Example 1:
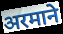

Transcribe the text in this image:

अरमाने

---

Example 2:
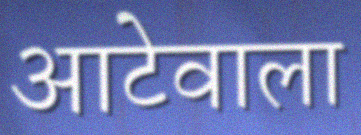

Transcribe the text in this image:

आटेवाला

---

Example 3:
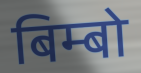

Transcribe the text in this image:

बिम्बो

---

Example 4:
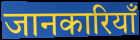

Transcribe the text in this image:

जानकारियाँ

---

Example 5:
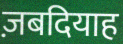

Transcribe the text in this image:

ज़बदियाह